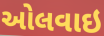
ઓલવાઇ